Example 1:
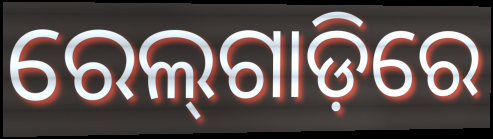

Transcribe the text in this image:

ରେଲ୍‌ଗାଡ଼ିରେ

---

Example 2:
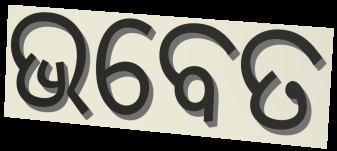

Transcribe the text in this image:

ଭବେତ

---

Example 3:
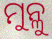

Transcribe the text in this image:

ମୁନ୍ଳୁ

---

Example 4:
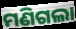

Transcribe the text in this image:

ମଣିଗଲା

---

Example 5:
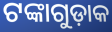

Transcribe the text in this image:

ଟଙ୍କାଗୁଡ଼ାକ